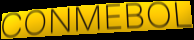
CONMEBOL